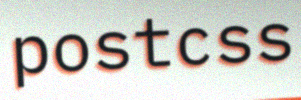
postcss